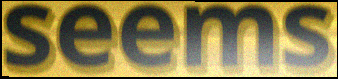
seems